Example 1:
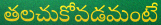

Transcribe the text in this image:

తలచుకోవడమంటే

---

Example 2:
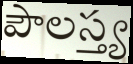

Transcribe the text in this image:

పౌలస్త్య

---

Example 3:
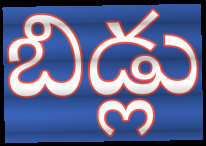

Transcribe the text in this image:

బిడ్లు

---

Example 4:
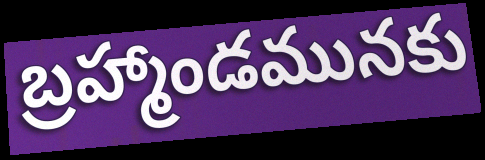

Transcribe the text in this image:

బ్రహ్మాండమునకు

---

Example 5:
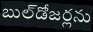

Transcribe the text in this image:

బుల్‌డోజర్లను